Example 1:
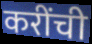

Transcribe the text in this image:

करींची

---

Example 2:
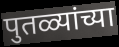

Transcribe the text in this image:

पुतळ्यांच्या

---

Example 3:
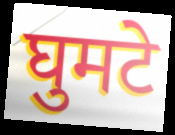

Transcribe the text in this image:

घुमटे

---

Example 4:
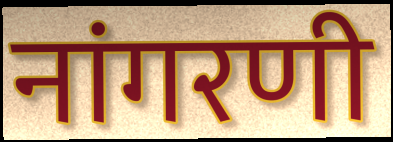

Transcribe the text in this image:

नांगरणी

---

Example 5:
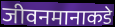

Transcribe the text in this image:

जीवनमानाकडे